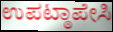
ಉಪಟ್ಠಾಪೇಸಿ